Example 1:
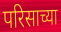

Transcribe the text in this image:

परिसाच्या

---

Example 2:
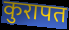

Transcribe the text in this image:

कुरापत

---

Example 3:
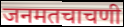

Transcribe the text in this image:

जनमतचाचणी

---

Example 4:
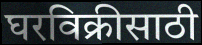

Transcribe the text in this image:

घरविक्रीसाठी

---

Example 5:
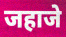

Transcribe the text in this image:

जहाजे